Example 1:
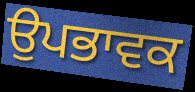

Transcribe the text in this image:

ਉਪਭਾਵਕ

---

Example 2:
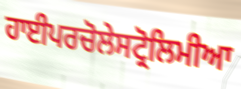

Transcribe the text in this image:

ਹਾਈਪਰਚੋਲੇਸਟ੍ਰੋਲਿਮੀਆ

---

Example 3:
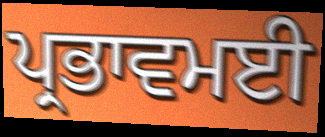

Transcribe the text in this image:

ਪ੍ਰਭਾਵਮਈ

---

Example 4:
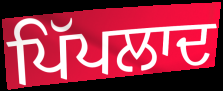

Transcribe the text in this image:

ਪਿੱਪਲਾਦ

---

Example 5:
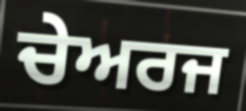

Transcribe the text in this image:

ਚੇਅਰਜ